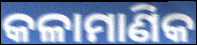
କଳାମାଣିକ